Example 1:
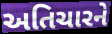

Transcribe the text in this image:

અતિચારને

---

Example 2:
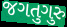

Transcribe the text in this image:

જગતુગુરુ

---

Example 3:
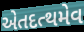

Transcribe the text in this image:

એતદત્થમેવ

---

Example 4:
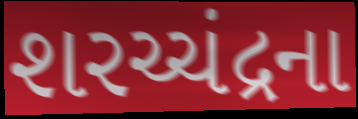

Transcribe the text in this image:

શરચ્ચંદ્રના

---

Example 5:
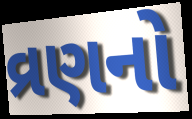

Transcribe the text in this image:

વ્રણનો